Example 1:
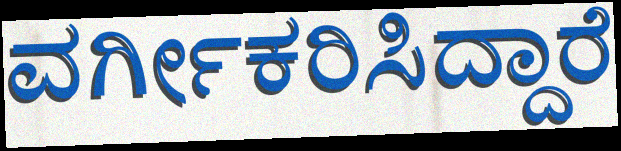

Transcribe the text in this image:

ವರ್ಗೀಕರಿಸಿದ್ದಾರೆ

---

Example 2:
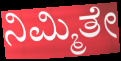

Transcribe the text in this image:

ನಿಮ್ಮಿತೇ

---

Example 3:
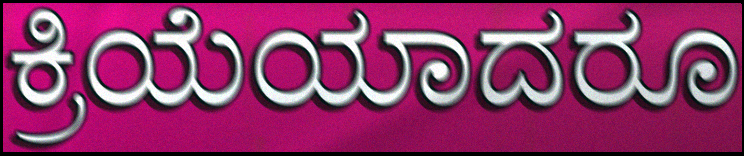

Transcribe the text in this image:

ಕ್ರಿಯೆಯಾದರೂ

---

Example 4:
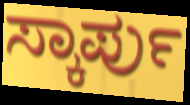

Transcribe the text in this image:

ಸ್ಕಾರ್ಪು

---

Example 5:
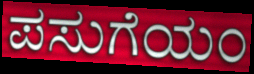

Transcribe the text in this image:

ಪಸುಗೆಯಂ